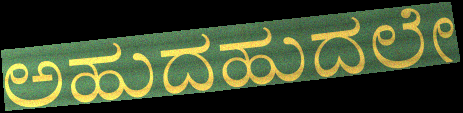
ಅಹುದಹುದಲೇ